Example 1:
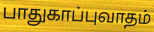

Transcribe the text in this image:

பாதுகாப்புவாதம்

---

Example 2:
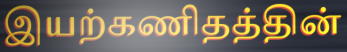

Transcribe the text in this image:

இயற்கணிதத்தின்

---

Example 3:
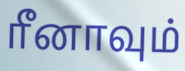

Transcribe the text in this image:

ரீனாவும்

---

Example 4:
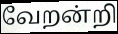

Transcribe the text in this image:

வேறன்றி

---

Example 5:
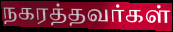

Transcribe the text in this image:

நகரத்தவர்கள்